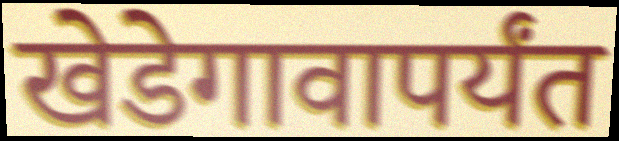
खेडेगावापर्यंत